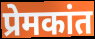
प्रेमकांत